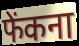
फेंकना